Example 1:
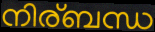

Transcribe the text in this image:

നിര്ബന്ധ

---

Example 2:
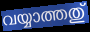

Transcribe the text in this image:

വയ്യാത്തതു്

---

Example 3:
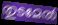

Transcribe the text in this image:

തുടമേൽ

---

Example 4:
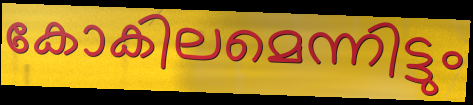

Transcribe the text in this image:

കോകിലമെന്നിട്ടും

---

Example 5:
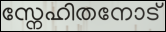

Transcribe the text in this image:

സ്നേഹിതനോട്